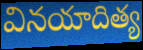
వినయాదిత్య